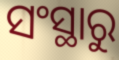
ସଂସ୍ଥାରୁ